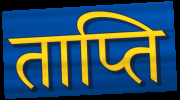
ताप्ति